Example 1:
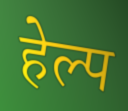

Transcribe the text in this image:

हेल्प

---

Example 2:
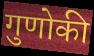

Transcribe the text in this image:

गुणोकी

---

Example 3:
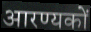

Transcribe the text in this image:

आरण्यकों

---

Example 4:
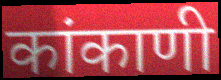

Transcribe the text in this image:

कांकाणी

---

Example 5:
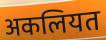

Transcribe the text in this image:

अकलियत